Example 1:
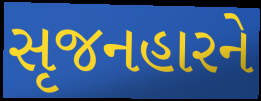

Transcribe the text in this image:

સૃજનહારને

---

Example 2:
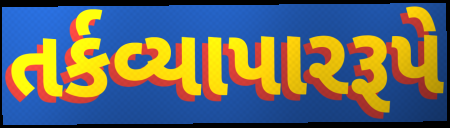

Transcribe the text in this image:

તર્કવ્યાપારરૂપે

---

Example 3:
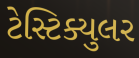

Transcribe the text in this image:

ટેસ્ટિક્યુલર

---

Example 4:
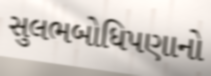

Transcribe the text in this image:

સુલભબોધિપણાનો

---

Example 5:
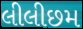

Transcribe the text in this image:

લીલીછમ